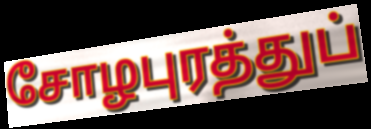
சோழபுரத்துப்